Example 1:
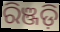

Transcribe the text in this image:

ରିଞ୍ଜଡ଼ି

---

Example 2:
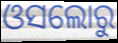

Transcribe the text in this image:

ଓସଲୋରୁ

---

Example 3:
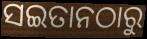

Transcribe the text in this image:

ସଇତାନଠାରୁ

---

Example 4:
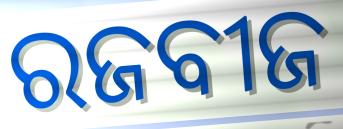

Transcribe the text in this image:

ରଜବୀଜ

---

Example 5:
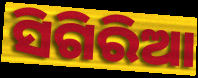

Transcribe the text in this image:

ସିଗିରିଆ